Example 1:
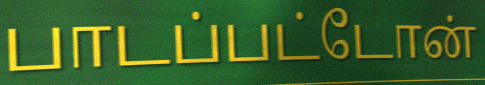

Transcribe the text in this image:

பாடப்பட்டோன்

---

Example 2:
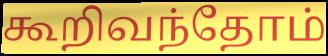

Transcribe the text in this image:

கூறிவந்தோம்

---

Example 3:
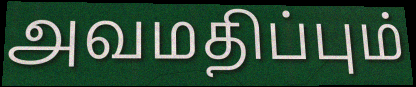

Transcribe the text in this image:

அவமதிப்பும்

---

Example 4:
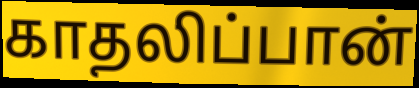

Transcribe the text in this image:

காதலிப்பான்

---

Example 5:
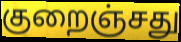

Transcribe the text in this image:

குறைஞ்சது